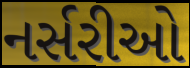
નર્સરીઓ